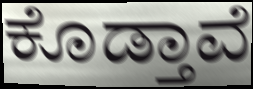
ಕೊಡ್ತಾವೆ